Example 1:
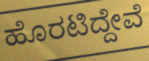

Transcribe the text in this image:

ಹೊರಟಿದ್ದೇವೆ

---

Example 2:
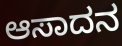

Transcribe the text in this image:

ಆಸಾದನ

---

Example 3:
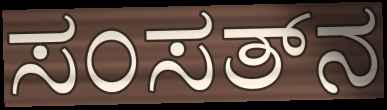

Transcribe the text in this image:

ಸಂಸತ್‌ನ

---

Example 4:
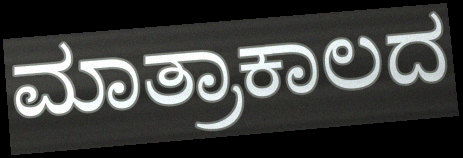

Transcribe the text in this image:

ಮಾತ್ರಾಕಾಲದ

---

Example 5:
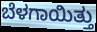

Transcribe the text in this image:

ಬೆಳಗಾಯಿತ್ತು